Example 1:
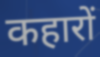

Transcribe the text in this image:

कहारों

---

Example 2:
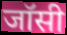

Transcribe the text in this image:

जॉसी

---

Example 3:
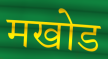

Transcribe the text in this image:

मखोड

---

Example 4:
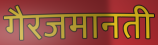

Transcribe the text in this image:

गैरजमानती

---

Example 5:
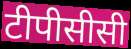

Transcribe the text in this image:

टीपीसीसी